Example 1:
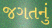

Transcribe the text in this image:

જગતનું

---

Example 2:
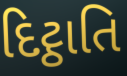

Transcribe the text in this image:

દિટ્ઠાતિ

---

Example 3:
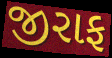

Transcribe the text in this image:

જીરાફ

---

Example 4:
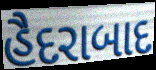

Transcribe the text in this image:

હૈદરાબાદ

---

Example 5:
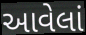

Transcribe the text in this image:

આવેલાં